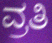
ವ್ರತಿ